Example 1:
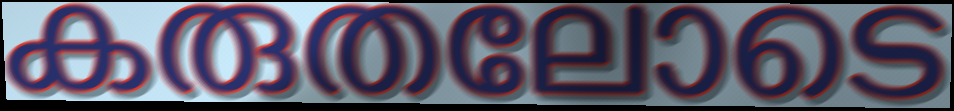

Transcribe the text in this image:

കരുതലോടെ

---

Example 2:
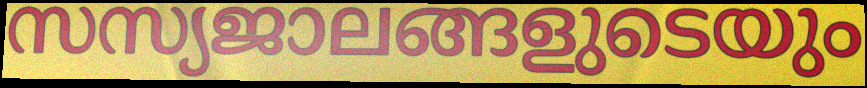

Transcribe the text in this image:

സസ്യജാലങ്ങളുടെയും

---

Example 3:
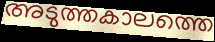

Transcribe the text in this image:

അടുത്തകാലത്തെ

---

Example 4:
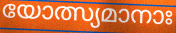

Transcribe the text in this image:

യോത്സ്യമാനാഃ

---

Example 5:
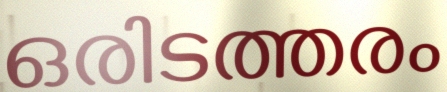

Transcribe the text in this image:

ഒരിടത്തരം